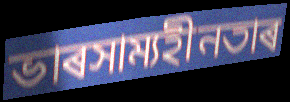
ভাৰসাম্যহীনতাৰ